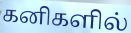
கனிகளில்